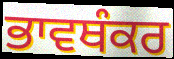
ਭਾਵਥੰਕਰ